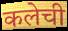
कलेची